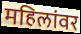
महिलांवर